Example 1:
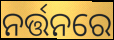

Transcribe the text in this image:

ନର୍ତ୍ତନରେ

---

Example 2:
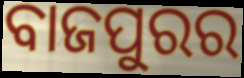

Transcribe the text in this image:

ବାଜପୁରର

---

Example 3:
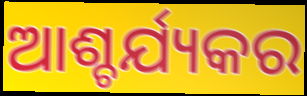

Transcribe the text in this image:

ଆଶ୍ଚର୍ଯ୍ୟକର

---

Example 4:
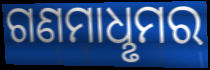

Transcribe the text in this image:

ଗଣମାଧୢମର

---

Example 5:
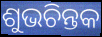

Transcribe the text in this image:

ଶୁଭଚିନ୍ତକ